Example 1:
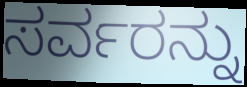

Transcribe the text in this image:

ಸರ್ವರನ್ನು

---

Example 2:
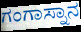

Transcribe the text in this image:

ಗಂಗಾಸ್ನಾನ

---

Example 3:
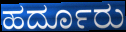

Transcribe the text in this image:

ಹರ್ದೂರು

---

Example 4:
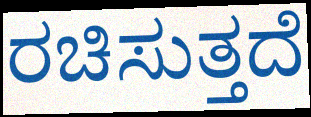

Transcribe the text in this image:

ರಚಿಸುತ್ತದೆ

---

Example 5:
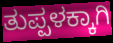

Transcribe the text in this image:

ತುಪ್ಪಳಕ್ಕಾಗಿ